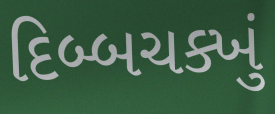
દિબ્બચક્ખું